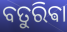
ବତୁରିଵା